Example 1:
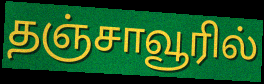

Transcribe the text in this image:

தஞ்சாவூரில்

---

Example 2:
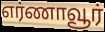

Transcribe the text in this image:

எர்ணாவூர்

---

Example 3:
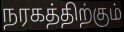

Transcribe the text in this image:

நரகத்திற்கும்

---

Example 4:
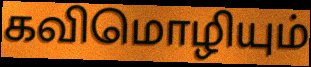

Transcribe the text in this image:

கவிமொழியும்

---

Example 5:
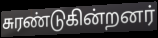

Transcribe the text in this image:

சுரண்டுகின்றனர்